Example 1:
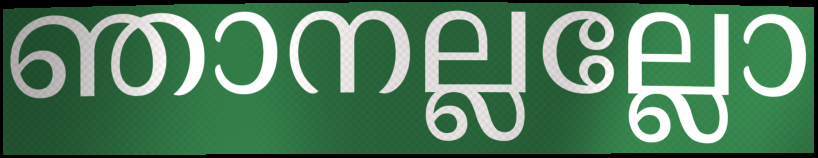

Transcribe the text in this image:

ഞാനല്ലല്ലോ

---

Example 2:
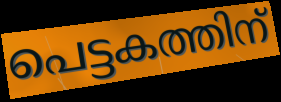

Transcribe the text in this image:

പെട്ടകത്തിന്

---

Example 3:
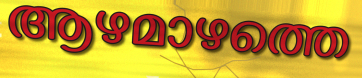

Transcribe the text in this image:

ആഴമാഴത്തെ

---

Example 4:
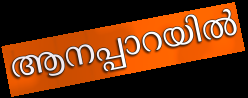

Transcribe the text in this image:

ആനപ്പാറയിൽ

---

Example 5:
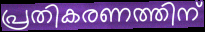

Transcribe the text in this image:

പ്രതികരണത്തിന്